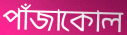
পাঁজাকোল